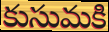
కుసుమకి